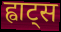
ह्वाट्स